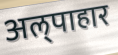
अल्पाहार